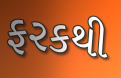
ફરકથી